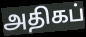
அதிகப்